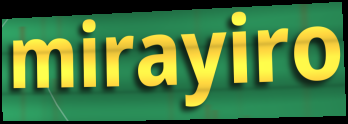
mirayiro